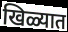
खिळ्यात